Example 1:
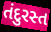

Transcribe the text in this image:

તંદુરસ્ત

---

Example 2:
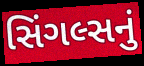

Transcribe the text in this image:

સિંગલ્સનું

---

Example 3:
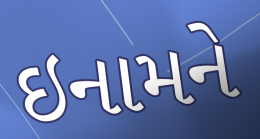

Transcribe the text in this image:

ઇનામને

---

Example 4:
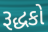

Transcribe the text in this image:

રૂદ્ધકો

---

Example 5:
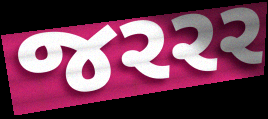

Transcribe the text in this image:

જરરર